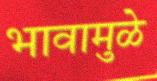
भावामुळे